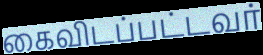
கைவிடப்பட்டவர்